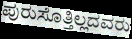
ಪುರುಸೊತ್ತಿಲ್ಲದವರು